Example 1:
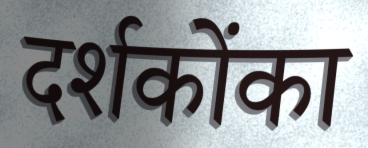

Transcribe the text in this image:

दर्शकोंका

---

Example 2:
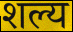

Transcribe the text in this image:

शल्य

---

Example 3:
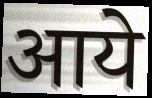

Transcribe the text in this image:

आये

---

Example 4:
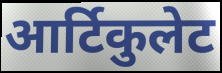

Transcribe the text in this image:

आर्टिकुलेट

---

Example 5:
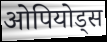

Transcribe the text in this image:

ओपियोड्स